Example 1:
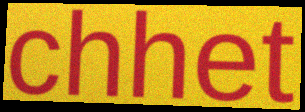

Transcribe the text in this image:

chhet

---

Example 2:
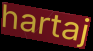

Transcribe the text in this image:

hartaj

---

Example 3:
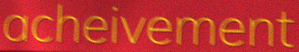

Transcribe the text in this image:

acheivement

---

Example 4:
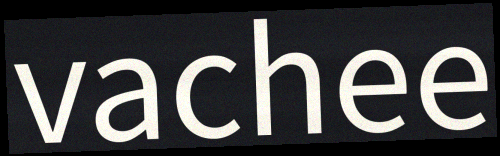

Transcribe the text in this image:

vachee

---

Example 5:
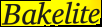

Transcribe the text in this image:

Bakelite